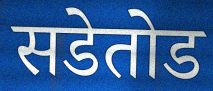
सडेतोड